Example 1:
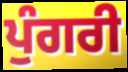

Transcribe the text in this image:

ਪੁੰਗਰੀ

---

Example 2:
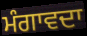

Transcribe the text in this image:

ਮੰਗਾਵਦਾ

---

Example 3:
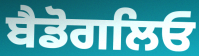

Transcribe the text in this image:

ਬੈਡੋਗਲਿਓ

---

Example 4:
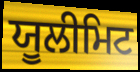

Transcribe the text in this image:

ਯੂਲੀਮਿਟ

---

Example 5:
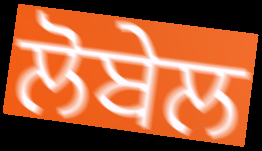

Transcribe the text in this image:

ਲੋਬੇਲ